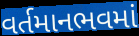
વર્તમાનભવમાં